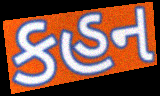
કહન